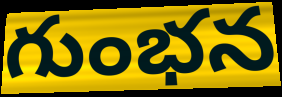
గుంభన